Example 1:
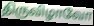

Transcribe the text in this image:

திருவிழாவோ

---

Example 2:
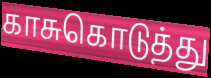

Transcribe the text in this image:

காசுகொடுத்து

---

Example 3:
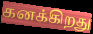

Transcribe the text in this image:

கனக்கிறது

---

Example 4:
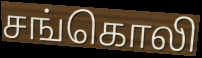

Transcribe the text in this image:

சங்கொலி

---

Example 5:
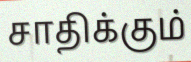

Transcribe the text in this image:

சாதிக்கும்